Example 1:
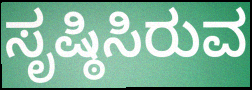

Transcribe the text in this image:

ಸೃಷ್ಠಿಸಿರುವ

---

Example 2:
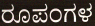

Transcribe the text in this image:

ರೂಪಂಗಳ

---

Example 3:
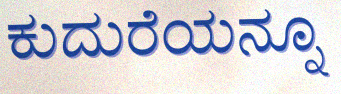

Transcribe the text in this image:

ಕುದುರೆಯನ್ನೂ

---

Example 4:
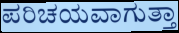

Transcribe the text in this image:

ಪರಿಚಯವಾಗುತ್ತಾ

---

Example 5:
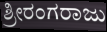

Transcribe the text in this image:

ಶ್ರೀರಂಗರಾಜು